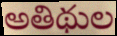
అతిథుల